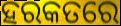
ହରକତରେ